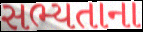
સભ્યતાના